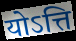
योऽत्ति